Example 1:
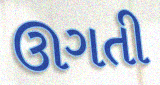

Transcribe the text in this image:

ઊગતી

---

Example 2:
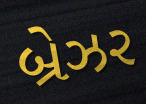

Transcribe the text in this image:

બ્રેઝર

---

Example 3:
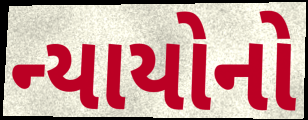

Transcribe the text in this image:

ન્યાયોનો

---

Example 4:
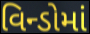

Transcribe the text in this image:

વિન્ડોમાં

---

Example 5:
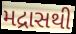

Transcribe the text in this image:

મદ્રાસથી